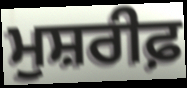
ਮੁਸ਼ਰੀਫ਼